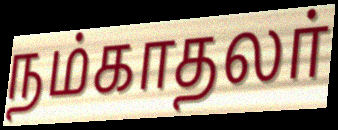
நம்காதலர்